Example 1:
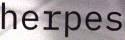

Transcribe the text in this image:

herpes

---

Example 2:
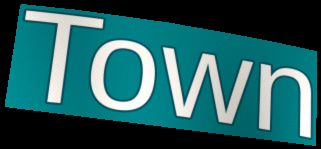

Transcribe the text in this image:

Town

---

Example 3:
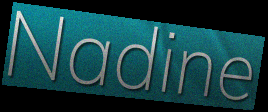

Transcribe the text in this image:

Nadine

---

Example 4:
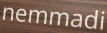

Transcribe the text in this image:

nemmadi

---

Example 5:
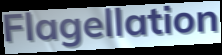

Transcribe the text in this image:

Flagellation